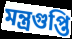
মন্ত্রগুপ্তি